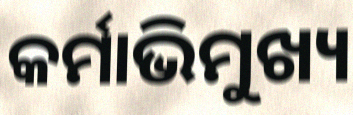
କର୍ମାଭିମୁଖ୍ୟ